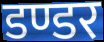
डण्डर